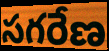
సగరేణ